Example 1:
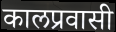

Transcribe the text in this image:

कालप्रवासी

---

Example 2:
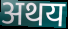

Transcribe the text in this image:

अथय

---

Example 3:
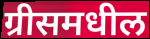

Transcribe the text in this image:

ग्रीसमधील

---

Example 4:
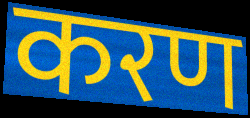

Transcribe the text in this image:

करण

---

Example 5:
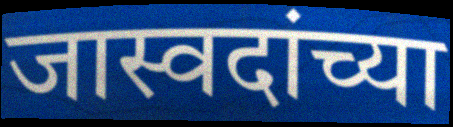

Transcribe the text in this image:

जास्वदांच्या